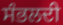
ਸੰਭਲਦੀ